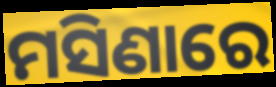
ମସିଣାରେ